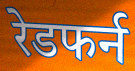
रेडफर्न